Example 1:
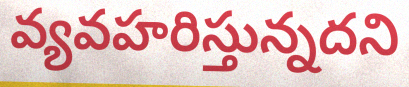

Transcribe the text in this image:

వ్యవహరిస్తున్నదని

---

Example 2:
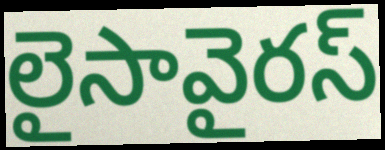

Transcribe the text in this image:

లైసావైరస్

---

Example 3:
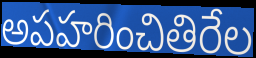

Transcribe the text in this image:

అపహరించితిరేల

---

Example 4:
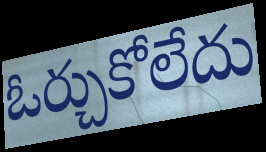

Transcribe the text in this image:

ఓర్చుకోలేదు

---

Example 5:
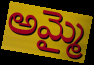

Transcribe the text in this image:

అమ్మై